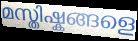
മസ്തിഷ്കങ്ങളെ